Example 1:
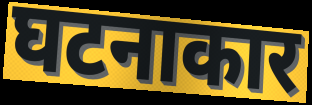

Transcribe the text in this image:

घटनाकार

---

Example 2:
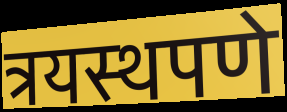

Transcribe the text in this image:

त्रयस्थपणे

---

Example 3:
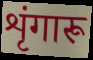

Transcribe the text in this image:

शृंगारू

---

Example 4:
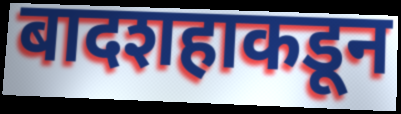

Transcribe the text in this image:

बादशहाकडून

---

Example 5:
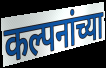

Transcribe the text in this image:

कल्पनांच्या